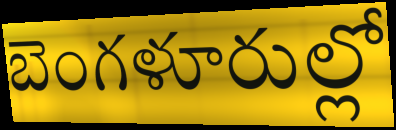
బెంగళూరుల్లో